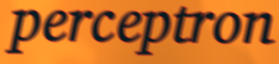
perceptron